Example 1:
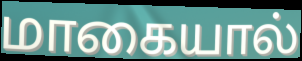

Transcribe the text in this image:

மாகையால்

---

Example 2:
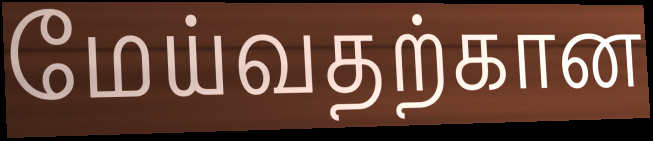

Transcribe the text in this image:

மேய்வதற்கான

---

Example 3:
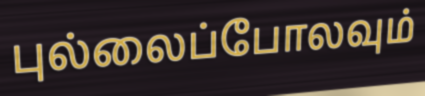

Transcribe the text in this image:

புல்லைப்போலவும்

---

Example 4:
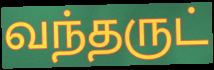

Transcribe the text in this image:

வந்தருட்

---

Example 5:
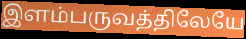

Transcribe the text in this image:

இளம்பருவத்திலேயே